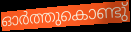
ഓർത്തുകൊണ്ടു്